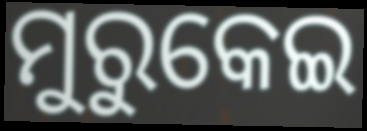
ମୁରୁକେଇ